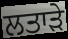
ਲਤਾਡ਼ੇ